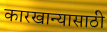
कारखान्यासाठी